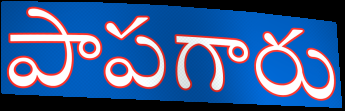
పాపగారు